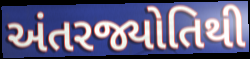
અંતરજ્યોતિથી